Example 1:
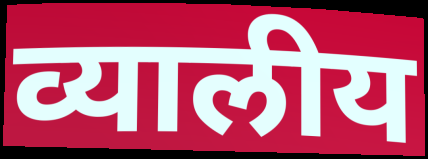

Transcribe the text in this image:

व्यालीय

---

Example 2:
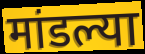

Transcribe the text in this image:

मांडल्या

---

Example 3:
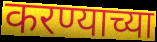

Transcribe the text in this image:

करण्याच्या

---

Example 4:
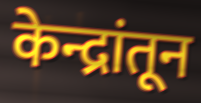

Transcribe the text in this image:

केन्द्रांतून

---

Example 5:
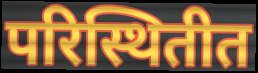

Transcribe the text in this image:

परिस्थितीत